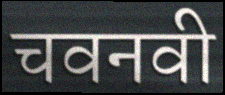
चवनवी